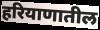
हरियाणातील